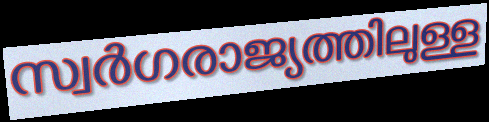
സ്വർഗരാജ്യത്തിലുള്ള